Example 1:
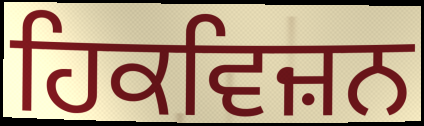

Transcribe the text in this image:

ਹਿਕਵਿਜ਼ਨ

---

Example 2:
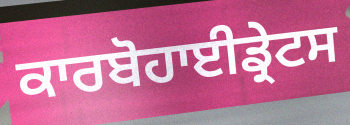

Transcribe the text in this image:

ਕਾਰਬੋਹਾਈਡ੍ਰੇਟਸ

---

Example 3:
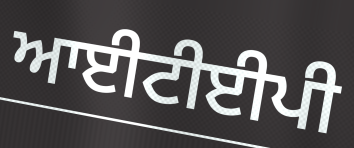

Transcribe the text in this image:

ਆਈਟੀਈਪੀ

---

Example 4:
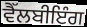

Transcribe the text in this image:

ਵੈੱਲਬੀਇੰਗ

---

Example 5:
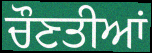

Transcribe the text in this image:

ਚੌਣਤੀਆਂ